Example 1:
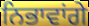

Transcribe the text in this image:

ਨਿਭਾਵਾਂਗੇ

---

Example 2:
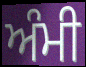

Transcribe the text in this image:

ਅੰਮੀ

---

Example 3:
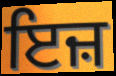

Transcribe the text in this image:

ਇਜ਼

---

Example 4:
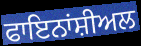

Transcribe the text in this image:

ਫਾਇਨਾਂਸ਼ੀਅਲ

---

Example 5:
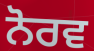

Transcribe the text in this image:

ਨੋਰਵ